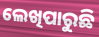
ଲେଖିପାରୁଛି